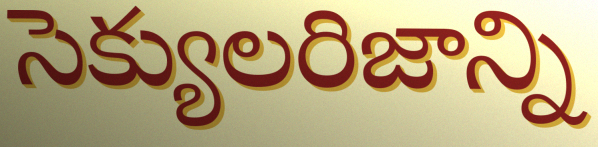
సెక్యులరిజాన్ని